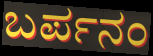
ಬರ್ಪನಂ